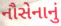
નૌસેનાનું